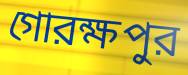
গোরক্ষপুর